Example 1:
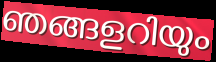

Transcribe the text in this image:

ഞങ്ങളറിയും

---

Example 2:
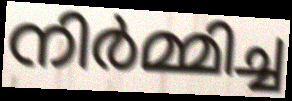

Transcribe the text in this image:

നിർമ്മിച്ച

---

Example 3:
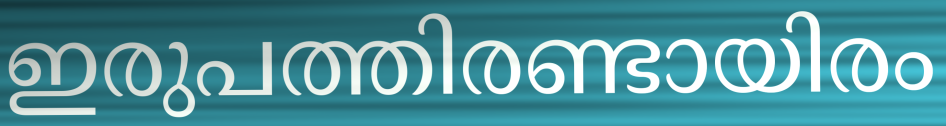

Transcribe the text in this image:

ഇരുപത്തിരണ്ടായിരം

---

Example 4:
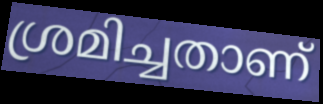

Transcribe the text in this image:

ശ്രമിച്ചതാണ്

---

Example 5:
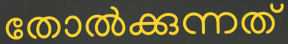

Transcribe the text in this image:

തോൽക്കുന്നത്